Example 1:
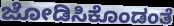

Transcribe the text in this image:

ಜೋಡಿಸಿಕೊಂಡಂತೆ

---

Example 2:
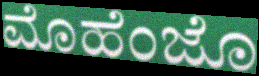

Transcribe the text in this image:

ಮೊಹೆಂಜೊ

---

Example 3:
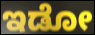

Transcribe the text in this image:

ಇಡೋ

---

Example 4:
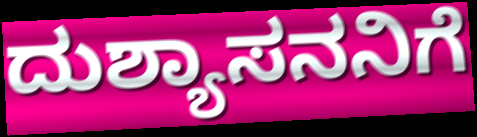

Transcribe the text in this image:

ದುಶ್ಯಾಸನನಿಗೆ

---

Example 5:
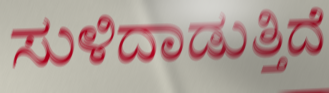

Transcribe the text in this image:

ಸುಳಿದಾಡುತ್ತಿದೆ